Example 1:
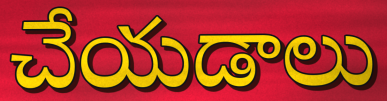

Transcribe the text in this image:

చేయడాలు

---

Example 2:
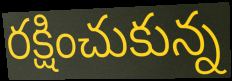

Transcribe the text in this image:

రక్షించుకున్న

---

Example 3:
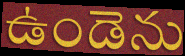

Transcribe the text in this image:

ఉండెను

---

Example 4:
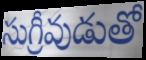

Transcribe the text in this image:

సుగ్రీవుడుతో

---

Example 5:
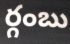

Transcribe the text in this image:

ర్గంబు